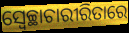
ସ୍ଵେଚ୍ଛାଚାରୀରିତାରେ